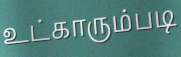
உட்காரும்படி